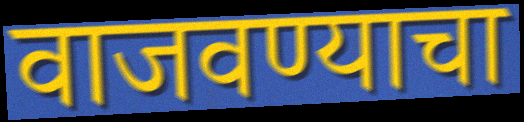
वाजवण्याचा